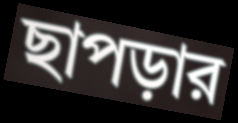
ছাপড়ার